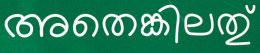
അതെങ്കിലതു്